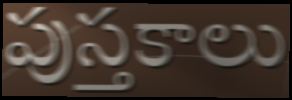
పుస్తకాలు